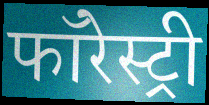
फॉरेस्ट्री